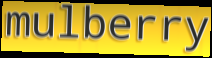
mulberry